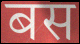
बस